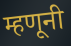
म्हणूनी